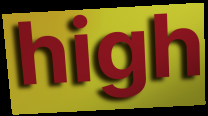
high